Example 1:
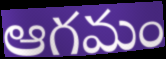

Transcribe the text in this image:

ఆగమం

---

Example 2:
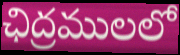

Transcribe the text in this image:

ఛిద్రములలో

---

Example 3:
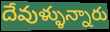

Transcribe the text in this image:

దేవుళ్ళున్నారు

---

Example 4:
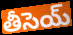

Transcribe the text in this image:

తీసెయ్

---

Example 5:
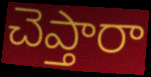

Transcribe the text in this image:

చెప్తారా